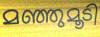
മഞ്ഞുമൂടി